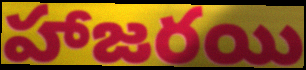
హాజరయి